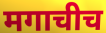
मगाचीच